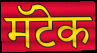
मॅटेक